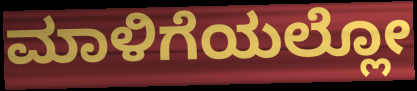
ಮಾಳಿಗೆಯಲ್ಲೋ